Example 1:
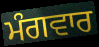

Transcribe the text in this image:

ਮੰਗਵਾਰ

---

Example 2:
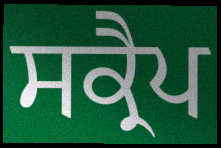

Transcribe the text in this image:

ਸਕ੍ਰੈਪ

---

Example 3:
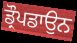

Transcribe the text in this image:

ਡ੍ਰੌਪਡਾਉਨ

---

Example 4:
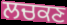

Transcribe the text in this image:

ਲਚਕਣ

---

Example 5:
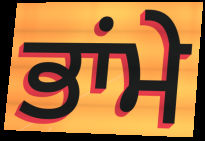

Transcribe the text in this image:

ਭਾਂਮੇ